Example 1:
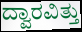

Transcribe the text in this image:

ದ್ವಾರವಿತ್ತು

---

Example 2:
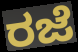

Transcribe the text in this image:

ರಜೆ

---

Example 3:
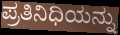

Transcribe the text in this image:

ಪ್ರತಿನಿಧಿಯನ್ನು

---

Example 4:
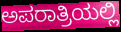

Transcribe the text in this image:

ಅಪರಾತ್ರಿಯಲ್ಲಿ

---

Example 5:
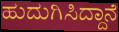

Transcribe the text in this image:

ಹುದುಗಿಸಿದ್ದಾನೆ